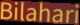
Bilahari